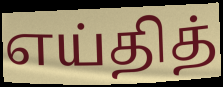
எய்தித்